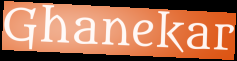
Ghanekar